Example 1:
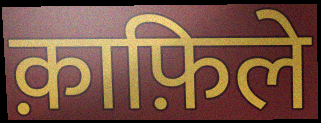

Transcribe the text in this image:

क़ाफ़िले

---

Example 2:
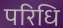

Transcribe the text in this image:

परिधि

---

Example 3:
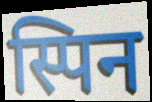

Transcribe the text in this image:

स्पिन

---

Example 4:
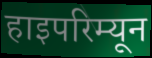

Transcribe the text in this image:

हाइपरिम्यून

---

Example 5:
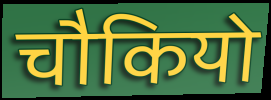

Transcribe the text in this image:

चौकियो